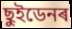
ছুইডেনৰ